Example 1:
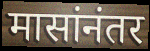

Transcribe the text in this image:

मासांनंतर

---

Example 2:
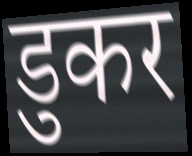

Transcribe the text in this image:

डुकर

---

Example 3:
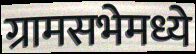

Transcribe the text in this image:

ग्रामसभेमध्ये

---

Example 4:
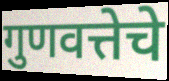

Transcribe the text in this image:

गुणवत्तेचे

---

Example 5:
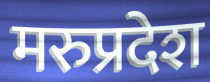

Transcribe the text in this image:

मरुप्रदेश